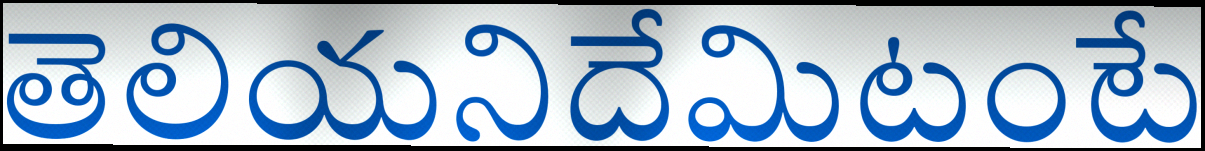
తెలియనిదేమిటంటే